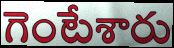
గెంటేశారు